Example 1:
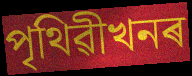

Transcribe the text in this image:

পৃথিৱীখনৰ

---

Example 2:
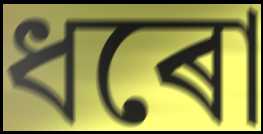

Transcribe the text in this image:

ধৰো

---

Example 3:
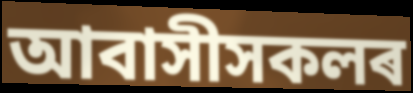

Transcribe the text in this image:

আবাসীসকলৰ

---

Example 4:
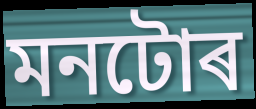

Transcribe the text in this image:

মনটোৰ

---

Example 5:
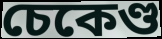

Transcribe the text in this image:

চেকেণ্ড